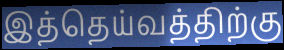
இத்தெய்வத்திற்கு